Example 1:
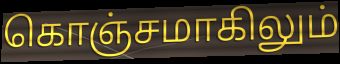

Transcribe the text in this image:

கொஞ்சமாகிலும்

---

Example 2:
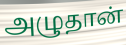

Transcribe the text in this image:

அழுதான்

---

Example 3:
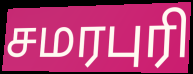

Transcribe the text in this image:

சமரபுரி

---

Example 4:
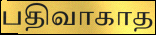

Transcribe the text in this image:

பதிவாகாத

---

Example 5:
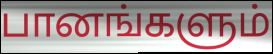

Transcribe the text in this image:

பானங்களும்